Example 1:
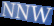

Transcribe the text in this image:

NNW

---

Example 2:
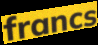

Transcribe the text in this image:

francs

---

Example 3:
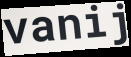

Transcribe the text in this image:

vanij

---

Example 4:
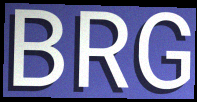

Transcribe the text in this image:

BRG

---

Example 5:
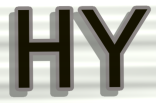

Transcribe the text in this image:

HY